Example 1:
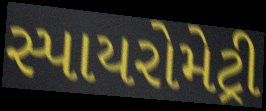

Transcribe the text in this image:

સ્પાયરોમેટ્રી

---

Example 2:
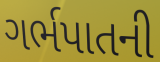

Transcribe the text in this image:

ગર્ભપાતની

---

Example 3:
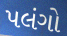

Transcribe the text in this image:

પલંગો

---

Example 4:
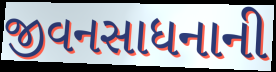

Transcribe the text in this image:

જીવનસાધનાની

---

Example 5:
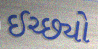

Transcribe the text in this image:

ઈચ્છ્યો